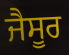
ਜੈਸੂਰ